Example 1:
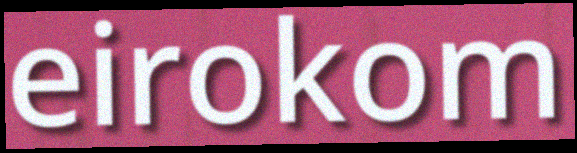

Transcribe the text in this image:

eirokom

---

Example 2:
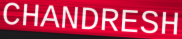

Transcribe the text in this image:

CHANDRESH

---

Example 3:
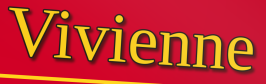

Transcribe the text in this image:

Vivienne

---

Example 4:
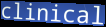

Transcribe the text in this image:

clinical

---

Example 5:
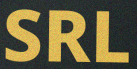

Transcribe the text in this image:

SRL